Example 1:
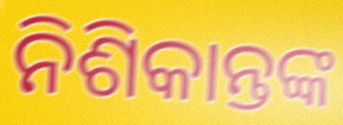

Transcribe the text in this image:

ନିଶିକାନ୍ତଙ୍କ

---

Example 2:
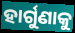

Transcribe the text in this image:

ହାର୍ଗୁଣାକୁ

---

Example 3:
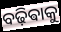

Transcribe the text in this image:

ବଢ଼ିଵାକୁ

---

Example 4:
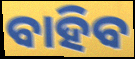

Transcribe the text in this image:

ବାହିବ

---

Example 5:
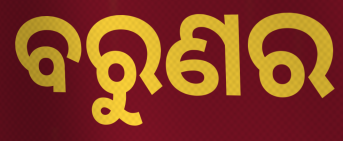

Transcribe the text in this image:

ବରୁଣର